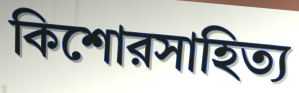
কিশোরসাহিত্য